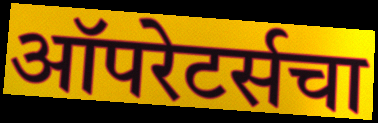
ऑपरेटर्सचा